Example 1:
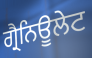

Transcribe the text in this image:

ਗ੍ਰੈਨਿਊਲੇਟ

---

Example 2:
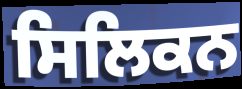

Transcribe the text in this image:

ਸਿਲਿਕਨ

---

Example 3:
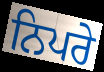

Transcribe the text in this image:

ਨਿਪਰੇ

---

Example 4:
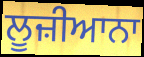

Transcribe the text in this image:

ਲੂਜ਼ੀਆਨਾ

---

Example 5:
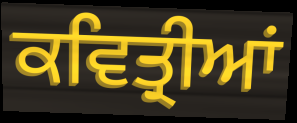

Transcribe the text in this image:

ਕਵਿਤ੍ਰੀਆਂ